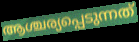
ആശ്ചര്യപ്പെടുന്നത്